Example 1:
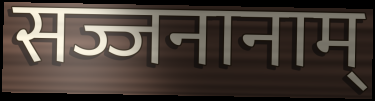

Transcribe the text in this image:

सज्जनानाम्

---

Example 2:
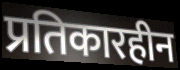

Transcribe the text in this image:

प्रतिकारहीन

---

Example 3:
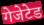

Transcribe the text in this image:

गेजेटेड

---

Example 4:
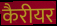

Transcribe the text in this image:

कैरीयर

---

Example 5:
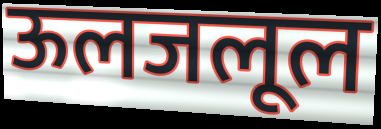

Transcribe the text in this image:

ऊलजलूल